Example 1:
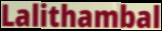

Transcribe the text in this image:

Lalithambal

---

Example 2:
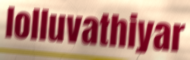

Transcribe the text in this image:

lolluvathiyar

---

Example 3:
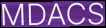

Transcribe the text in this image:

MDACS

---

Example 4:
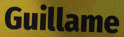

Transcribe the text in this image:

Guillame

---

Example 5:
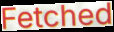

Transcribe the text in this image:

Fetched